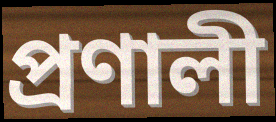
প্ৰণালী